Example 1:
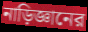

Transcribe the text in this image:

নাড়িজ্ঞানের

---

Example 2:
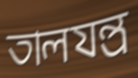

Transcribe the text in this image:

তালযন্ত্র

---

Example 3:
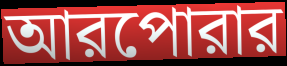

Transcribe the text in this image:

আরপোরার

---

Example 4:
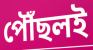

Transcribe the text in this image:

পৌঁছলই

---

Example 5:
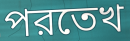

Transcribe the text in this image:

পরতেখ